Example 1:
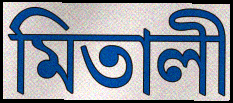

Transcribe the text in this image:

মিতালী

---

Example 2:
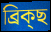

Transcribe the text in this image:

ব্ৰিক্ছ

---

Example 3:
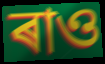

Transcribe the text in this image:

ৰাও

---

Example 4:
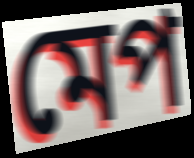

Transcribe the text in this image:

মেপ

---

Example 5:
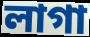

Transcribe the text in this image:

লাগা